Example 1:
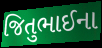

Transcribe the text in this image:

જિતુભાઈના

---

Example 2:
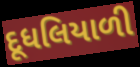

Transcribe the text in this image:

દૂધલિયાળી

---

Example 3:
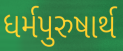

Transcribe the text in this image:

ધર્મપુરુષાર્થ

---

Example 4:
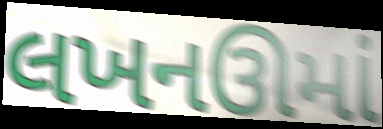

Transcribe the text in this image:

લખનઊમાં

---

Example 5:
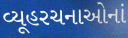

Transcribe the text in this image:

વ્યૂહરચનાઓનાં